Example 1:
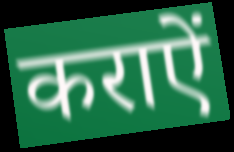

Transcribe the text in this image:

कराऐं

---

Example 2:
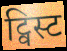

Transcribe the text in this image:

ट्विस्ट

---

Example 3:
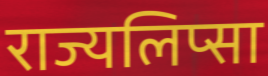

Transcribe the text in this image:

राज्यलिप्सा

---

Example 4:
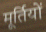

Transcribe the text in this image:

मूर्तियों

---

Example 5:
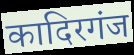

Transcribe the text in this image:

कादिरगंज